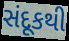
સંદૂકથી